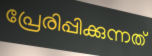
പ്രേരിപ്പിക്കുന്നത്